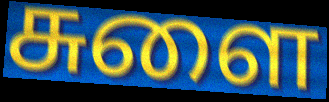
சுளை